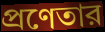
প্রণেতার